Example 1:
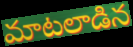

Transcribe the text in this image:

మాటలాడిన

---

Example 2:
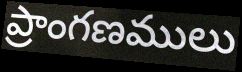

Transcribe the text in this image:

ప్రాంగణములు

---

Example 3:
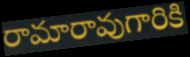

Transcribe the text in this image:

రామారావుగారికి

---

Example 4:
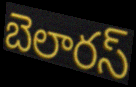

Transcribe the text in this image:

బెలారస్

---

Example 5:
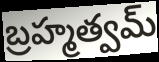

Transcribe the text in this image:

బ్రహ్మత్వమ్